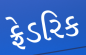
ફ્રેડરિક